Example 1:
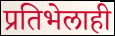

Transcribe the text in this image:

प्रतिभेलाही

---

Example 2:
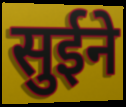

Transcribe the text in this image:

सुईने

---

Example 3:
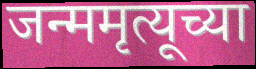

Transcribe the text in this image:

जन्ममृत्यूच्या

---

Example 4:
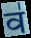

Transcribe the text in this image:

व॑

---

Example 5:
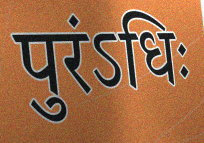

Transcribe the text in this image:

पुरंऽधिः